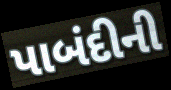
પાબંદીની